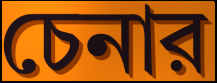
চেনার